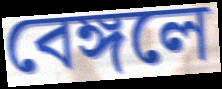
বেঙ্গলে